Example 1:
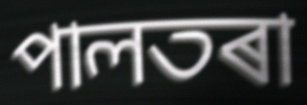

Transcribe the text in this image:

পালতৰা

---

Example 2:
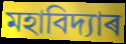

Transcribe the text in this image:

মহাবিদ্যাৰ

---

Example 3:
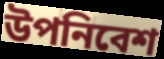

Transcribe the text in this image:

উপনিবেশ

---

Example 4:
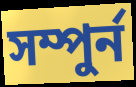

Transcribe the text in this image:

সম্পুৰ্ন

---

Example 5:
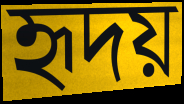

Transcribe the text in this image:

হৃদয়